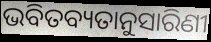
ଭବିତବ୍ୟତାନୁସାରିଣୀ